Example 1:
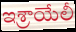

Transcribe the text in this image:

ఇశ్రాయేలీ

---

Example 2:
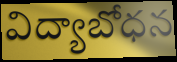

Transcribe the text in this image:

విద్యాబోధన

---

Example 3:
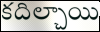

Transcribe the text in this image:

కదిల్చాయి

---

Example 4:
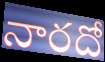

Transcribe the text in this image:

నారదో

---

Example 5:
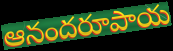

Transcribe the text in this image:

ఆనందరూపాయ